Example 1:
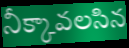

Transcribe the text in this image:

నీక్కావలసిన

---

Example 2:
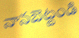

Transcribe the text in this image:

నానబెట్టండి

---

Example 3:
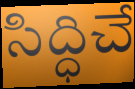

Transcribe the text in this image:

సిద్ధిచే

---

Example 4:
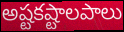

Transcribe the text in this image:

అష్టకష్టాలపాలు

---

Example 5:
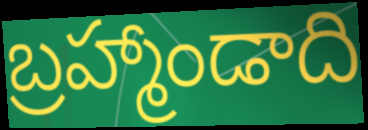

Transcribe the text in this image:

బ్రహ్మాండాది